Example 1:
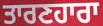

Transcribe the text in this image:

ਤਾਰਣਹਾਰਾ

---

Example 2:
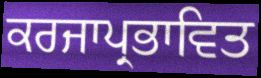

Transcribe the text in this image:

ਕਰਜਾਪ੍ਰਭਾਵਿਤ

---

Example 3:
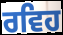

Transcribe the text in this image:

ਰਵਿਹ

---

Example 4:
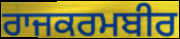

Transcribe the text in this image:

ਰਾਜਕਰਮਬੀਰ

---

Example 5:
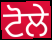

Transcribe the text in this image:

ਟੋਲੇ